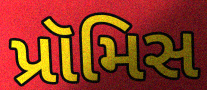
પ્રૉમિસ